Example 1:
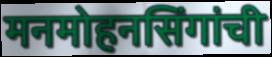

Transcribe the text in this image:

मनमोहनसिंगांची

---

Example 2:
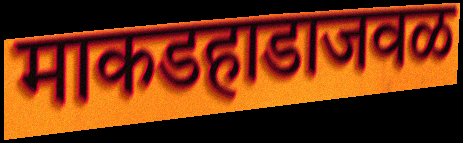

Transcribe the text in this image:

माकडहाडाजवळ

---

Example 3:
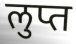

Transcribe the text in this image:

लुप्त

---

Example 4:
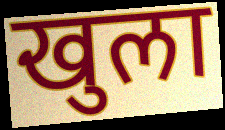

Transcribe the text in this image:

खुला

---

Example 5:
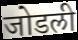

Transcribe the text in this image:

जोडली